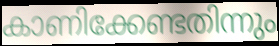
കാണിക്കേണ്ടതിന്നും